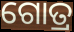
ଗୋତ୍ର